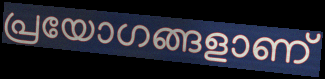
പ്രയോഗങ്ങളാണ്